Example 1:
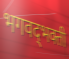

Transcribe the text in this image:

भगवद्‌भक्ती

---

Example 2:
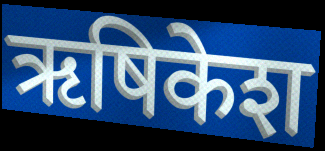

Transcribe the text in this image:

ऋषिकेश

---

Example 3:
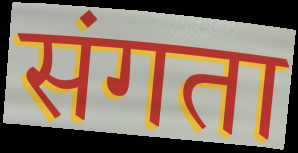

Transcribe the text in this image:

संगता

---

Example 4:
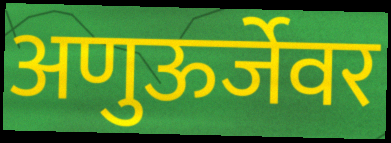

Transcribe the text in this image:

अणुऊर्जेवर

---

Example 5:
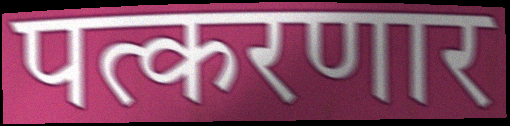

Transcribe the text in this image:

पत्करणार